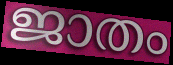
ജാതം